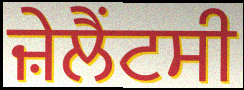
ਜ਼ੇਲੈਂਟਸੀ